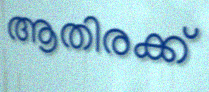
ആതിരക്ക്